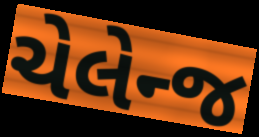
ચેલેન્જ